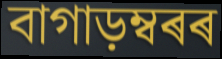
বাগাড়ম্বৰৰ